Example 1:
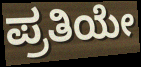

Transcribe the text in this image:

ಪ್ರತಿಯೇ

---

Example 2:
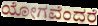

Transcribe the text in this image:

ಯೋಗವೆಂದರೆ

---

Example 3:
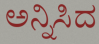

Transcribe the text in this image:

ಅನ್ನಿಸಿದ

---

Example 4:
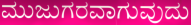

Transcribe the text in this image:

ಮುಜುಗರವಾಗುವುದು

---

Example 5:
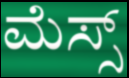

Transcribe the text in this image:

ಮೆಸ್ಸ್